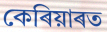
কেৰিয়াৰত